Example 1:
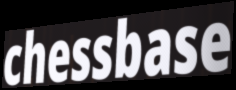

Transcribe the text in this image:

chessbase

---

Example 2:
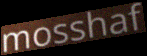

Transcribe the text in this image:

mosshaf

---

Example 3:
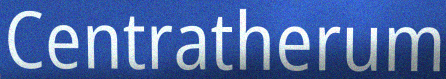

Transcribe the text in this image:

Centratherum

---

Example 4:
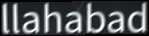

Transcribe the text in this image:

llahabad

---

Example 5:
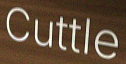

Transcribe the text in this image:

Cuttle